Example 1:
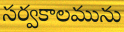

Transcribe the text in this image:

సర్వకాలమును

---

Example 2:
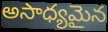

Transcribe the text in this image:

అసాధ్యమైన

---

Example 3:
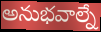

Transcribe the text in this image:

అనుభవాల్నే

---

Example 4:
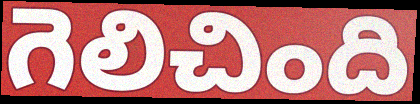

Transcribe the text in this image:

గెలిచింది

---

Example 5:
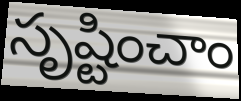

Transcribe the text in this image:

సృష్టించాం